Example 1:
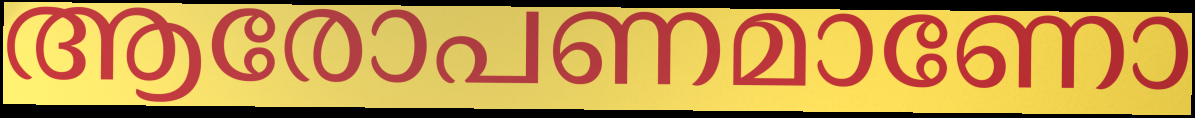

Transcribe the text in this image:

ആരോപണമാണോ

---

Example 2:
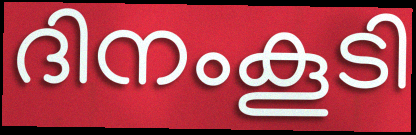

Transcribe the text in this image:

ദിനംകൂടി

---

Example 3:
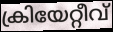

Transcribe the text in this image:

ക്രിയേറ്റീവ്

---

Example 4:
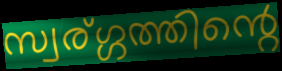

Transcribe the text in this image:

സ്വര്ഗ്ഗത്തിന്റെ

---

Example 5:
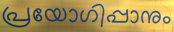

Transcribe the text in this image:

പ്രയോഗിപ്പാനും